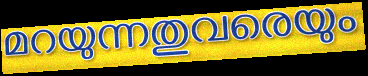
മറയുന്നതുവരെയും